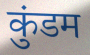
कुंडम